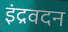
इंद्रवदन